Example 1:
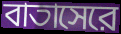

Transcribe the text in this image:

বাতাসেরে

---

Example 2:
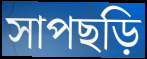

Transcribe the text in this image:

সাপছড়ি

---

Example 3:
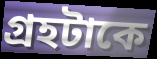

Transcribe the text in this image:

গ্রহটাকে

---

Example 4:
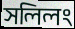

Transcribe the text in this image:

সলিলং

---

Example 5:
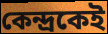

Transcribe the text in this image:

কেন্দ্রকেই